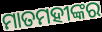
ମାତମହୀଙ୍କର